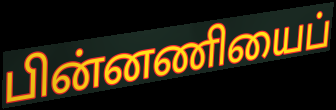
பின்னணியைப்